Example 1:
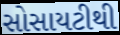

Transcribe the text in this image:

સોસાયટીથી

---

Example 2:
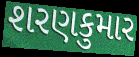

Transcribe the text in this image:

શરણકુમાર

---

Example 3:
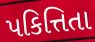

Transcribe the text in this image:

પકિત્તિતા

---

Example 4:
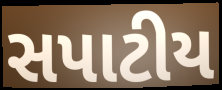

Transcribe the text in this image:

સપાટીય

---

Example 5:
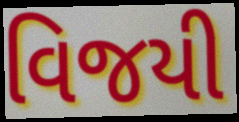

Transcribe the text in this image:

વિજયી